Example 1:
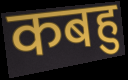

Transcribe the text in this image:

कबहु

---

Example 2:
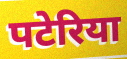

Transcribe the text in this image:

पटेरिया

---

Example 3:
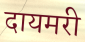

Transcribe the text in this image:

दायमरी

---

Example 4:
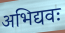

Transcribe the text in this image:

अभिद्यवः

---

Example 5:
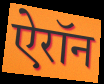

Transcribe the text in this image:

ऐरॉन